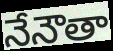
నేనౌతా